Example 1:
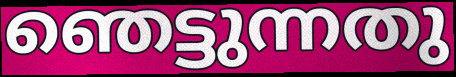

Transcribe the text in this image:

ഞെട്ടുന്നതു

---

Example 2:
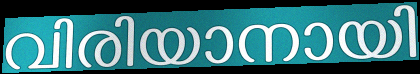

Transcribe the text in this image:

വിരിയാനായി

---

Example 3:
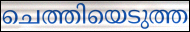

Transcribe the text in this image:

ചെത്തിയെടുത്ത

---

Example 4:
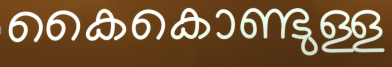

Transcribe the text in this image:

കൈകൊണ്ടുള്ള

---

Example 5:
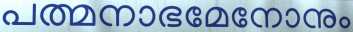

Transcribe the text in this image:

പത്മനാഭമേനോനും